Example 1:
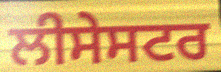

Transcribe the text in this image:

ਲੀਸੇਸਟਰ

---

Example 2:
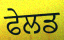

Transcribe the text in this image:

ਫੇਲਡ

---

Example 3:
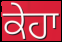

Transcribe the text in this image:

ਕੇਹਾ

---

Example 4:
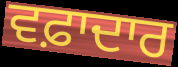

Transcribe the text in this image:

ਵਫ਼ਾਦਾਰ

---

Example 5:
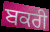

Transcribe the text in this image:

ਬਕਰੀ